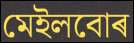
মেইলবোৰ